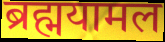
ब्रह्मयामल